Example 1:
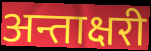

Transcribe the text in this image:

अन्ताक्षरी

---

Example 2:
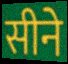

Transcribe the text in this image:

सीने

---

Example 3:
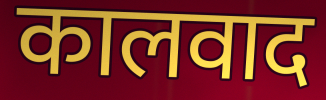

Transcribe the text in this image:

कालवाद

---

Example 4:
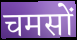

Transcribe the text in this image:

चमसों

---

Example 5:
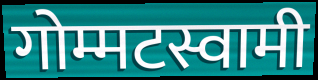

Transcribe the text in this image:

गोम्मटस्वामी